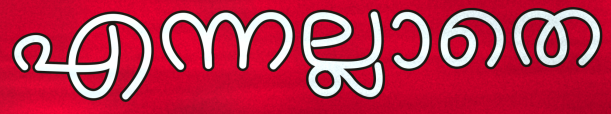
എന്നല്ലാതെ